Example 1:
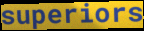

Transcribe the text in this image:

superiors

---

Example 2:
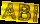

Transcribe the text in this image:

ABI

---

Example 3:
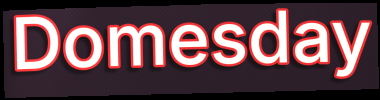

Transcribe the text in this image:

Domesday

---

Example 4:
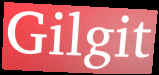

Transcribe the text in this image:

Gilgit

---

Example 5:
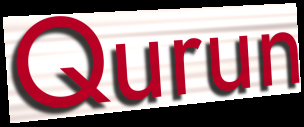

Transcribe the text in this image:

Qurun